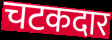
चटकदार